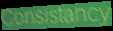
Consistancy